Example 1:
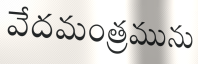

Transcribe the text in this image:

వేదమంత్రమును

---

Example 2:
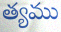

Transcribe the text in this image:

త్యము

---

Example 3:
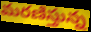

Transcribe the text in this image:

మరణిస్తున్న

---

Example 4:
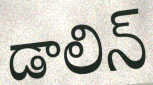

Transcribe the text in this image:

డాలిన్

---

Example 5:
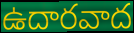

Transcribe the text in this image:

ఉదారవాద